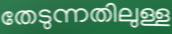
തേടുന്നതിലുള്ള